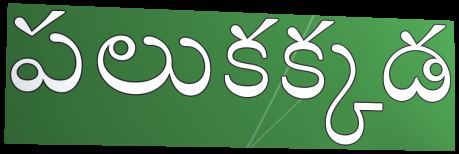
పలుకక్కడ